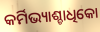
କର୍ମିଭ୍ୟାଶ୍ଚାଧିକୋ